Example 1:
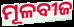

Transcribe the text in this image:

ମୂଳବୀଜ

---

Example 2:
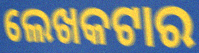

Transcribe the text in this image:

ଲେଖକଟାର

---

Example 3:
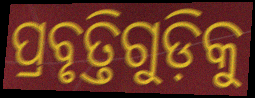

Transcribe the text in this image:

ପ୍ରବୃତ୍ତିଗୁଡ଼ିକୁ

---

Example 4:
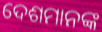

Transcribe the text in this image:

ଦେଶମାନଙ୍କ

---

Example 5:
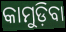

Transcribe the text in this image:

କାମୁଡ଼ିବା